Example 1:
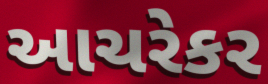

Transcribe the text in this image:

આચરેકર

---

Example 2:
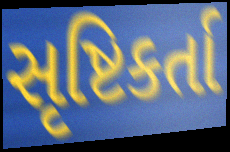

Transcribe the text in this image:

સૃષ્ટિકર્તા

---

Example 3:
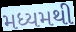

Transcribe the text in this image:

મધ્યમથી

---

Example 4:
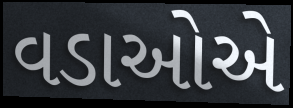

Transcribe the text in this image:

વડાઓએ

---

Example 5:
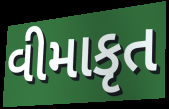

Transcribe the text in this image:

વીમાકૃત